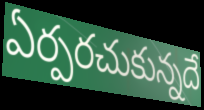
ఏర్పరచుకున్నదే